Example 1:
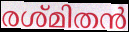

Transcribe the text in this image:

രശ്മിതൻ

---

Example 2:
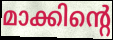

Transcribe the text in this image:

മാക്കിന്റെ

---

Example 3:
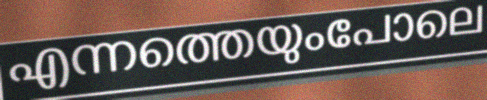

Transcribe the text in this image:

എന്നത്തെയുംപോലെ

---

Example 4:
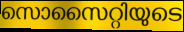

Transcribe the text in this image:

സൊസൈറ്റിയുടെ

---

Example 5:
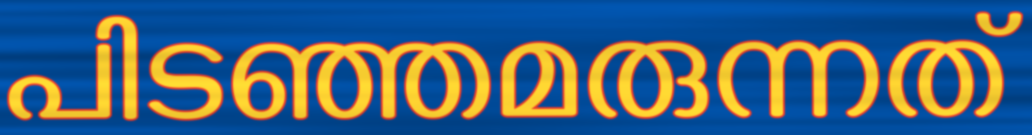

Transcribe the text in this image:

പിടഞ്ഞമരുന്നത്